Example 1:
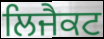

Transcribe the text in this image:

ਲਿਜੈਕਟ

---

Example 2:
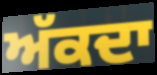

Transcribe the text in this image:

ਅੱਕਦਾ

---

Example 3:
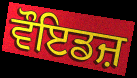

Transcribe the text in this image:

ਵੌਇਡਜ਼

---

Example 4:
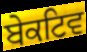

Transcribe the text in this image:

ਬੇਕਟਿਵ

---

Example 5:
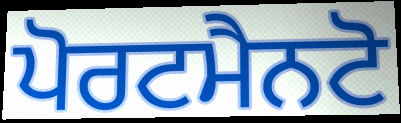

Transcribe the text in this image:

ਪੋਰਟਮੈਨਟੋ